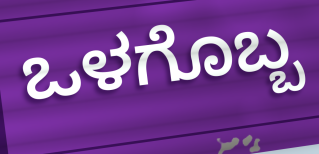
ಒಳಗೊಬ್ಬ